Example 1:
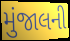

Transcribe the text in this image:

મુંજાલની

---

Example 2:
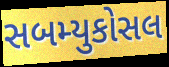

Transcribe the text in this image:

સબમ્યુકોસલ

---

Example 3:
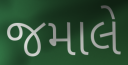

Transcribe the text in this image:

જમાલે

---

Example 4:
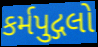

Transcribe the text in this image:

કર્મપુદ્ગલો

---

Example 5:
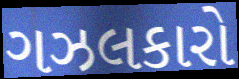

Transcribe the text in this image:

ગઝલકારો